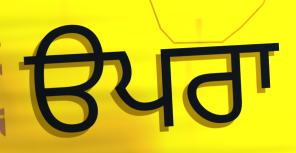
ੳਪਰਾ